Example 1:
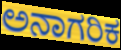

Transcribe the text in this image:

ಅನಾಗರಿಕ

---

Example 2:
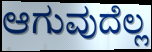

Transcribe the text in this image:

ಆಗುವುದೆಲ್ಲ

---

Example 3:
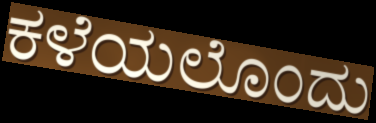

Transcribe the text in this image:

ಕಳೆಯಲೊಂದು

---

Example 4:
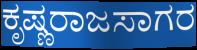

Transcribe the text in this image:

ಕೃಷ್ಣರಾಜಸಾಗರ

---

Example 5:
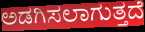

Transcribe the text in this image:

ಅಡಗಿಸಲಾಗುತ್ತದೆ